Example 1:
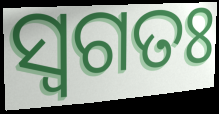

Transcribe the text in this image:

ସ୍ଵଗତଃ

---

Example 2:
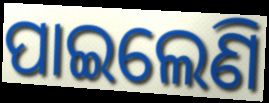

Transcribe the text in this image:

ପାଇଲେଣି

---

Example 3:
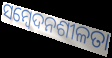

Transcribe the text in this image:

ସମ୍ଵେଦନଶୀଳତା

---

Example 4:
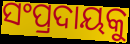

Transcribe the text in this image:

ସଂପ୍ରଦାୟକୁ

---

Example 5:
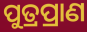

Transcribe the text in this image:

ପୁତ୍ରପ୍ରାଣ